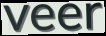
veer